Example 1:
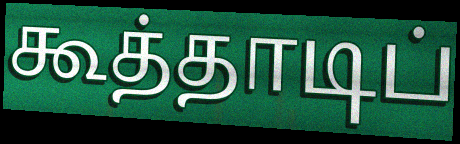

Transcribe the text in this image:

கூத்தாடிப்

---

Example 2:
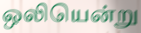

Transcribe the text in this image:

ஒலியென்று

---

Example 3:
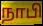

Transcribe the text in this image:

நாபி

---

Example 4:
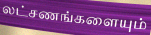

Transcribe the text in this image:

லட்சணங்களையும்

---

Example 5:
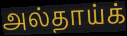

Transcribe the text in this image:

அல்தாய்க்